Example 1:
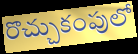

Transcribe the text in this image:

రొచ్చుకంపులో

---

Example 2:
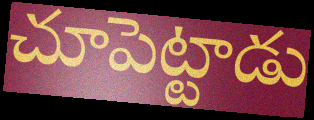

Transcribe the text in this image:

చూపెట్టాడు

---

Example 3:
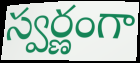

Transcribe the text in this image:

స్వర్ణంగా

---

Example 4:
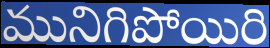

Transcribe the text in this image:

మునిగిపోయిరి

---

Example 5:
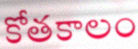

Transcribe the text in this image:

కోతకాలం